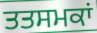
ਤਤਸਮਕਾਂ